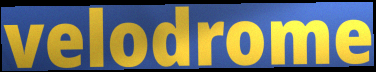
velodrome